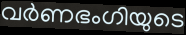
വർണഭംഗിയുടെ